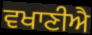
ਵਖਾਣੀਐ